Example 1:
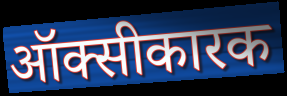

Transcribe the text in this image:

ऑक्सीकारक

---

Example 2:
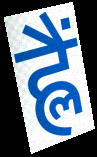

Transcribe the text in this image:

ह्लैं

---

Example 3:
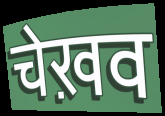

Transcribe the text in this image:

चेख़व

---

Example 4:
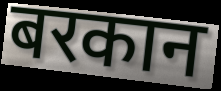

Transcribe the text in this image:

बरकान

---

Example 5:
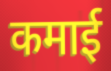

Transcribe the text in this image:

कमाई